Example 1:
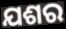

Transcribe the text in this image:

ଯଶର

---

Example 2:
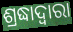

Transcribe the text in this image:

ଶ୍ରଦ୍ଧାଦ୍ୱାରା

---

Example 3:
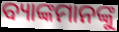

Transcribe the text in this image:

ବ୍ୟାଙ୍କମାନଙ୍କୁ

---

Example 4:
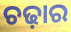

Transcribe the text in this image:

ଚଢ଼ାର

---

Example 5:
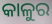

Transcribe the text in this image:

କାଳୁର